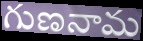
గుణనామ